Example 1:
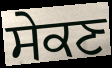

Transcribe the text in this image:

ਸੇਕਣ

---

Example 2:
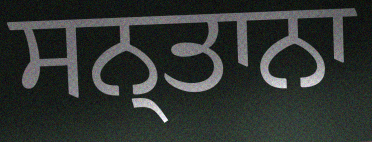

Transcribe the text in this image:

ਸਨ੍ਤਾਨਾ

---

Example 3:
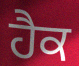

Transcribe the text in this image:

ਹੈਕ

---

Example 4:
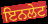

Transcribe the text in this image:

ਇਨਲੇਟ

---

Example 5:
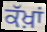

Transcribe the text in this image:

ਕੱਖ਼ਾਂ